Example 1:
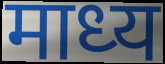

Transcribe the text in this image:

माध्‍य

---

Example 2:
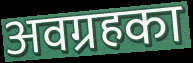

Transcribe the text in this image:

अवग्रहका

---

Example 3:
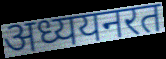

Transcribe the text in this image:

अध्ययनरत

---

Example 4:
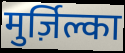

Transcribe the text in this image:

मुर्ज़िल्का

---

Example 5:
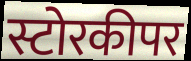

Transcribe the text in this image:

स्टोरकीपर